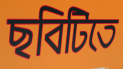
ছবিটিতে